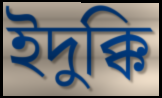
ইদুক্কি